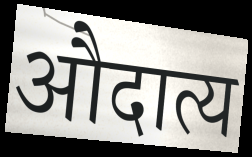
औदात्य